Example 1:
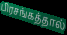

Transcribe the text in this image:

பிரசங்கத்தால்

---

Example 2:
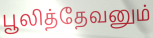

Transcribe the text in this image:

பூலித்தேவனும்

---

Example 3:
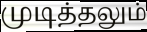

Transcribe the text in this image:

முடித்தலும்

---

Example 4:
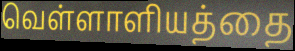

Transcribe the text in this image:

வெள்ளாளியத்தை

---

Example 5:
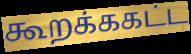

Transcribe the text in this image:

கூறக்ககட்ட